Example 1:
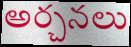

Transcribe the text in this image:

అర్చనలు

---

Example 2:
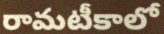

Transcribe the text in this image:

రామటీకాలో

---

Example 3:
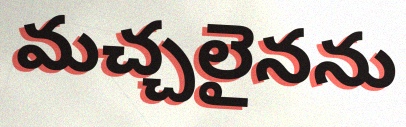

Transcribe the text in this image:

మచ్చలైనను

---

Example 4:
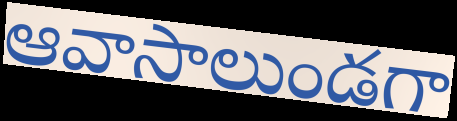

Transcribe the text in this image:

ఆవాసాలుండగా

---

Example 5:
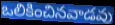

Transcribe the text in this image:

ఒలికించినవాడవు